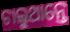
ଚାଲୁଥାନ୍ତେ